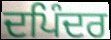
ਦਪਿੰਦਰ